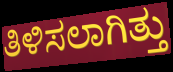
ತಿಳಿಸಲಾಗಿತ್ತು